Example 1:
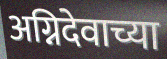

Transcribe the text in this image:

अग्निदेवाच्या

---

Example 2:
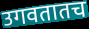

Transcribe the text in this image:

उगवतातच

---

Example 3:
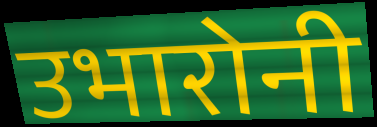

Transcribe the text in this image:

उभारोनी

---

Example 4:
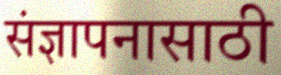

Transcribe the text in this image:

संज्ञापनासाठी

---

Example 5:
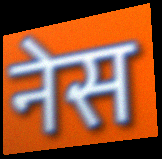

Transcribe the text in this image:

नेस